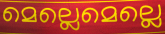
മെല്ലെമെല്ലെ